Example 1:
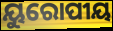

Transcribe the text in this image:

ୟୁରୋପୀୟ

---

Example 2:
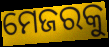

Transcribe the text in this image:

ମେଜରକୁ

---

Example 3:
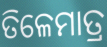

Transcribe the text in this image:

ତିଳେମାତ୍ର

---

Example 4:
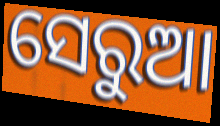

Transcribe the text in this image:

ସେରୁଆ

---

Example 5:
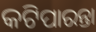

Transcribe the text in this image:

କଟିପାରନ୍ତା